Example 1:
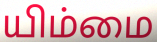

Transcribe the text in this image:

யிம்மை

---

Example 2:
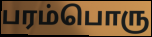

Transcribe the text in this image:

பரம்பொரு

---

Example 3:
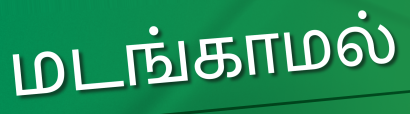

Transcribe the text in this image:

மடங்காமல்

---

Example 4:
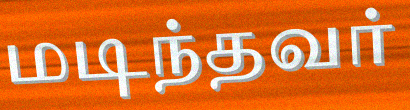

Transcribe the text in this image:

மடிந்தவர்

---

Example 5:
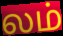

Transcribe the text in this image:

லம்